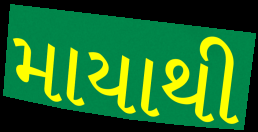
માયાથી